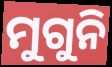
ମୁଗୁନି